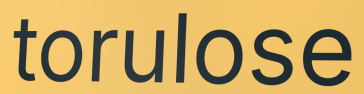
torulose